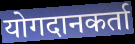
योगदानकर्ता